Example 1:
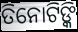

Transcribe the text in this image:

ତିନୋଟିଙ୍କି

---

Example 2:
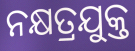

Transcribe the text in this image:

ନକ୍ଷତ୍ରଯୁକ୍ତ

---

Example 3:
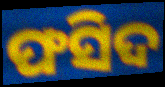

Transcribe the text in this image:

ଫସିଦ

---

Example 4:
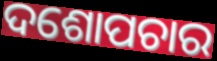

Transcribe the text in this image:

ଦଶୋପଚାର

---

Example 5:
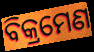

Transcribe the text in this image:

ବିକ୍ରମେଣ